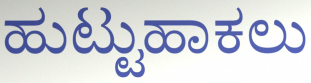
ಹುಟ್ಟುಹಾಕಲು